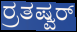
ರ್ರತಷ್ವರ್